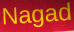
Nagad